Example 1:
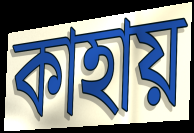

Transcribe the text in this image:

কাহায়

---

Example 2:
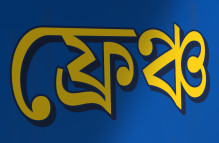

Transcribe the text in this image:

ফ্রেঞ্চ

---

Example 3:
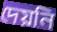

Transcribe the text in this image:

দেয়নি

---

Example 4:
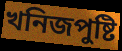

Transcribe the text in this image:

খনিজপুষ্টি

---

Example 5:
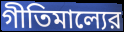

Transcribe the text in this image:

গীতিমাল্যের